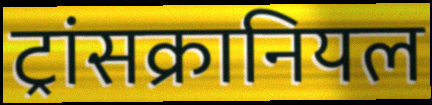
ट्रांसक्रानियल